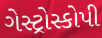
ગેસ્ટ્રોસ્કોપી